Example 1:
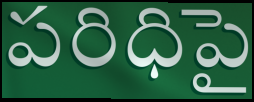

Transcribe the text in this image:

పరిధిపై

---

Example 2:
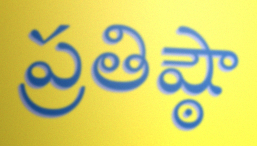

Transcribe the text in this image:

ప్రతిష్ఠౌ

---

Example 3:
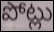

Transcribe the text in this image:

పోట్లు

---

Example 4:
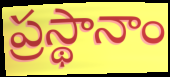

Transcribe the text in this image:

ప్రస్థానాం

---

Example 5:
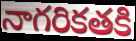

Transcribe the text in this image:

నాగరికతకి